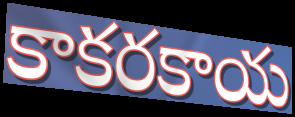
కాకరకాయ